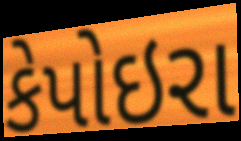
કેપોઇરા